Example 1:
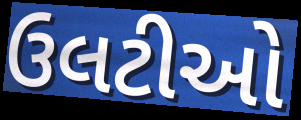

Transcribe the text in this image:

ઉલટીઓ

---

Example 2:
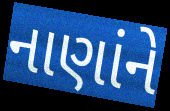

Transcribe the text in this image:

નાણાંને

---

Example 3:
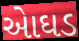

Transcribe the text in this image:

એાઘડ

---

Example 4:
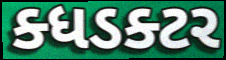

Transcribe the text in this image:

ક્ધડક્ટર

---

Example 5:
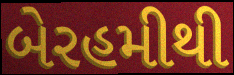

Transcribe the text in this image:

બેરહમીથી